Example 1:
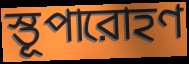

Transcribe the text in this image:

স্তূপারোহণ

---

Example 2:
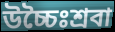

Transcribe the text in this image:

উচ্চৈঃশ্রবা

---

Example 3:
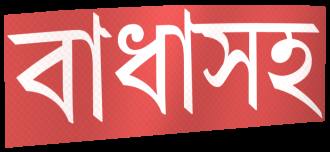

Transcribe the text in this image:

বাধাসহ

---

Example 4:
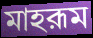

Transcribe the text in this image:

মাহরূম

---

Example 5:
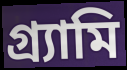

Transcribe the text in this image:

গ্র্যামি